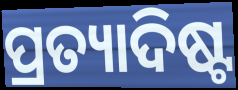
ପ୍ରତ୍ୟାଦିଷ୍ଟ